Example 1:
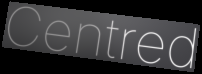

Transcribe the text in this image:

Centred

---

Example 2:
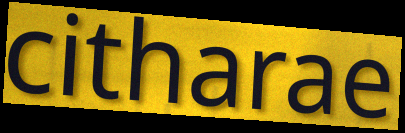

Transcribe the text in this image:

citharae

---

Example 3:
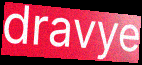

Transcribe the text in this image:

dravye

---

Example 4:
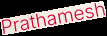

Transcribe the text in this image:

Prathamesh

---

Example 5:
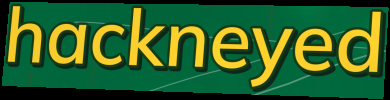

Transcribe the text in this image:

hackneyed